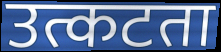
उत्कटता